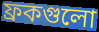
ফ্রকগুলো